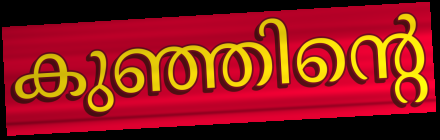
കുഞ്ഞിന്റെ